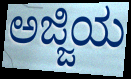
ಅಜ್ಜಿಯ